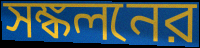
সঙ্কলনের